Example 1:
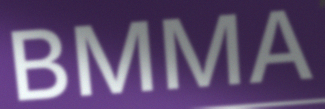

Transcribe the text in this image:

BMMA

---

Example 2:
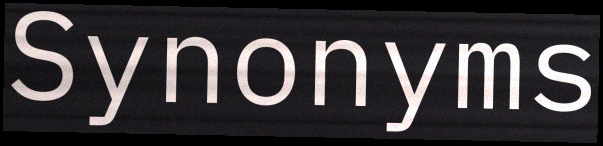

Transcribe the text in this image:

Synonyms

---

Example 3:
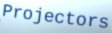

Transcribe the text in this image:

Projectors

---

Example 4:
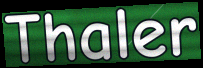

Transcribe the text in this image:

Thaler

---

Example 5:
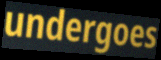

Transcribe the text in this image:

undergoes